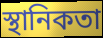
স্থানিকতা